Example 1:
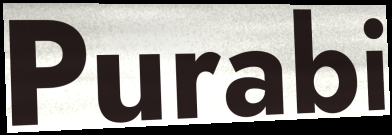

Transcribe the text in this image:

Purabi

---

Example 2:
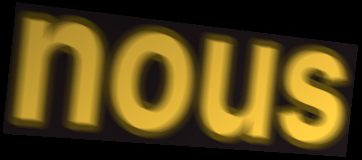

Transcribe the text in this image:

nous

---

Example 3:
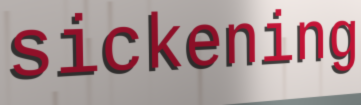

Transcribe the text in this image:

sickening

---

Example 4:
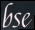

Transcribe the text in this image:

bse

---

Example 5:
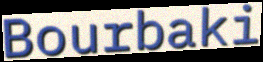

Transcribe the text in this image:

Bourbaki